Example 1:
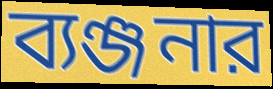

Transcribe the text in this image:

ব্যঞ্জনার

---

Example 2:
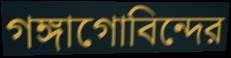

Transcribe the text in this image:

গঙ্গাগোবিন্দের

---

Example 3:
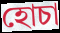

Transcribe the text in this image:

হোচা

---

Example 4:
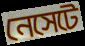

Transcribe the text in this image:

নেসেটে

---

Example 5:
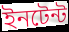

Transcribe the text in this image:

ইনটেন্ট